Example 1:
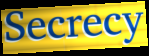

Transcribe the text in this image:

Secrecy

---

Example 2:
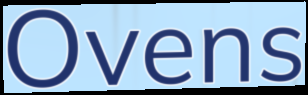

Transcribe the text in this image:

Ovens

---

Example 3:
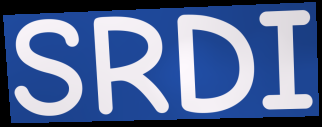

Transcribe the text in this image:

SRDI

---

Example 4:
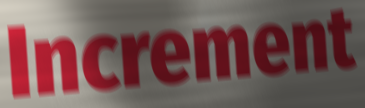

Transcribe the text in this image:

Increment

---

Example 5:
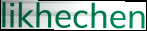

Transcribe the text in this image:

likhechen